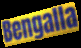
Bengalla